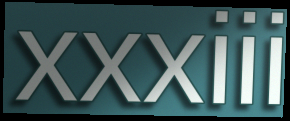
xxxiii